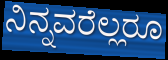
ನಿನ್ನವರೆಲ್ಲರೂ